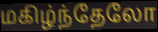
மகிழ்ந்தேலோ